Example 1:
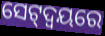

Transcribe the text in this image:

ସେଟ୍‌ଦ୍ଵୟରେ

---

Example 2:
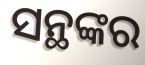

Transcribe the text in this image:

ସନ୍ଥଙ୍କର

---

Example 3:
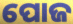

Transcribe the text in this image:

ପୋଜ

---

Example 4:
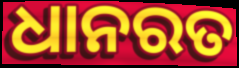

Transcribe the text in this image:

ଧାନରତ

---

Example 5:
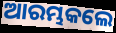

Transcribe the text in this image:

ଆରମ୍ଭକଲେ